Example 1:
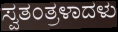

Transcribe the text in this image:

ಸ್ವತಂತ್ರಳಾದಳು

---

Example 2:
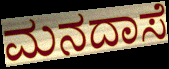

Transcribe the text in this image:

ಮನದಾಸೆ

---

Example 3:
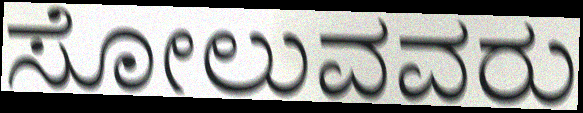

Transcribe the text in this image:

ಸೋಲುವವರು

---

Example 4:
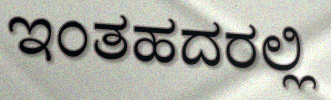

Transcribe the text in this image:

ಇಂತಹದರಲ್ಲಿ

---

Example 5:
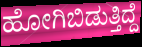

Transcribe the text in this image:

ಹೋಗಿಬಿಡುತ್ತಿದ್ದೆ